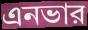
এনভার